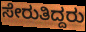
ಸೇರುತಿದ್ದರು